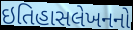
ઇતિહાસલેખનનો